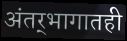
अंतर्भागातही